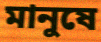
মানুষে